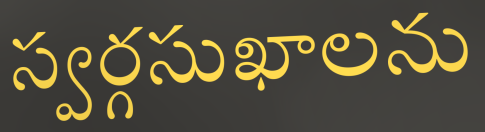
స్వర్గసుఖాలను